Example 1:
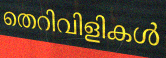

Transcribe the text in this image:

തെറിവിളികൾ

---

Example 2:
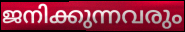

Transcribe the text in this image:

ജനിക്കുന്നവരും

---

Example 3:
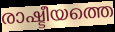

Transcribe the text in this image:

രാഷ്ടീയത്തെ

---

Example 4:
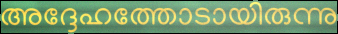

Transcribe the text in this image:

അദ്ദേഹത്തോടായിരുന്നു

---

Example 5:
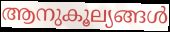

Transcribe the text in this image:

ആനുകൂല്യങ്ങൾ